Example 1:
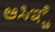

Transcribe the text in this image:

ಆಸಿಞ್ಚಿ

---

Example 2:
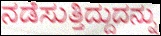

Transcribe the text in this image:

ನಡೆಸುತ್ತಿದ್ದುದನ್ನು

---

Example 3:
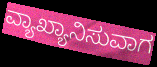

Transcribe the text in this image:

ವ್ಯಾಖ್ಯಾನಿಸುವಾಗ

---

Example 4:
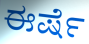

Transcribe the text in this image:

ಈರ್ಷೆ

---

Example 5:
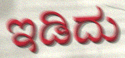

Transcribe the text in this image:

ಇಡಿದು